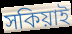
সকিয়াই